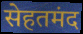
सेहतमंद